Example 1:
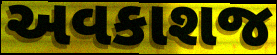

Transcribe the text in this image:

અવકાશજ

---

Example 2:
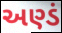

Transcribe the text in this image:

અણ્ડં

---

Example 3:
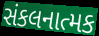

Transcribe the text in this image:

સંકલનાત્મક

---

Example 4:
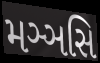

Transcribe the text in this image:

મઞ્ઞસિ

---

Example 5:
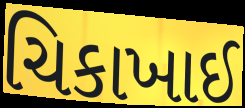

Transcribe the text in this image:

ચિકાખાઈ